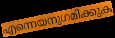
എന്നെയനുഗമിക്കുക